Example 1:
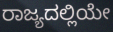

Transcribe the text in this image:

ರಾಜ್ಯದಲ್ಲಿಯೇ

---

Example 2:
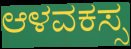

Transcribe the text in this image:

ಆಳವಕಸ್ಸ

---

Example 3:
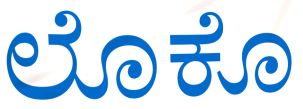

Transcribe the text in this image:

ಲೊಕೊ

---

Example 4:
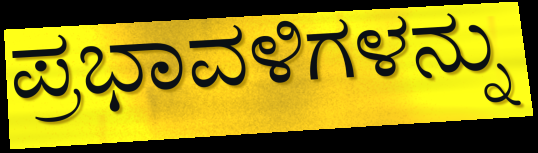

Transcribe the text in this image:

ಪ್ರಭಾವಳಿಗಳನ್ನು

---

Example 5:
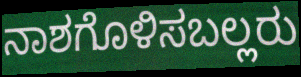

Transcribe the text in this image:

ನಾಶಗೊಳಿಸಬಲ್ಲರು